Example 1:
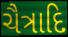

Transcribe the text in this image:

ચૈત્રાદિ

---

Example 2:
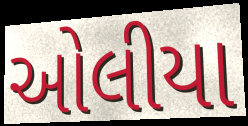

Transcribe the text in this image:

ઓલીયા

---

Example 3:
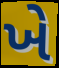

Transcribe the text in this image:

ખે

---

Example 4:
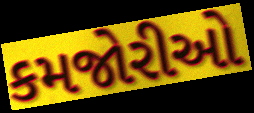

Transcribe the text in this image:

કમજોરીઓ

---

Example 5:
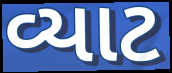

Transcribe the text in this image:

વ્યાટ